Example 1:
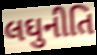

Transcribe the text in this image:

લઘુનીતિ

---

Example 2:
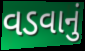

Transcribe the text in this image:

વડવાનું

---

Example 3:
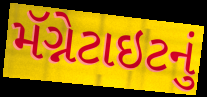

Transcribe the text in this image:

મૅગ્નેટાઇટનું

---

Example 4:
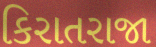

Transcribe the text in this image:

કિરાતરાજા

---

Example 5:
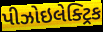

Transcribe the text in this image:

પીઝોઇલેક્ટ્રિક